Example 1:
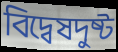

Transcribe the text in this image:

বিদ্বেষদুষ্ট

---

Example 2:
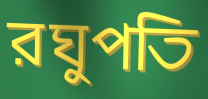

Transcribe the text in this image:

রঘুপতি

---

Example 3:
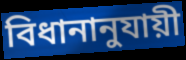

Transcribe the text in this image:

বিধানানুযায়ী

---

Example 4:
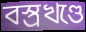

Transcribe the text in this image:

বস্ত্রখণ্ডে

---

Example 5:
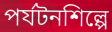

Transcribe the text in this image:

পর্যটনশিল্পে